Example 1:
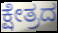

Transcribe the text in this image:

ಕ್ಷೇತ್ರದ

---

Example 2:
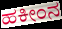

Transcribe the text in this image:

ಹಕೀಂನ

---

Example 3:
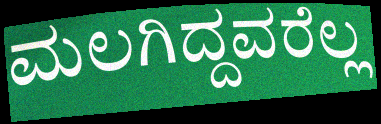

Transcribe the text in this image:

ಮಲಗಿದ್ದವರೆಲ್ಲ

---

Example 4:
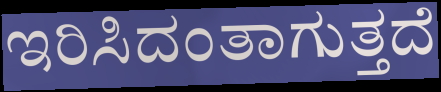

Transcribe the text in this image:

ಇರಿಸಿದಂತಾಗುತ್ತದೆ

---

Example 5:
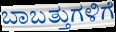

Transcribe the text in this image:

ಬಾಬತ್ತುಗಳಿಗೆ